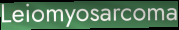
Leiomyosarcoma